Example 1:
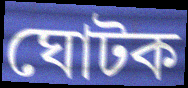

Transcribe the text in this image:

ঘোটক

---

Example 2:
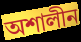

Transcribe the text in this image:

অশালীন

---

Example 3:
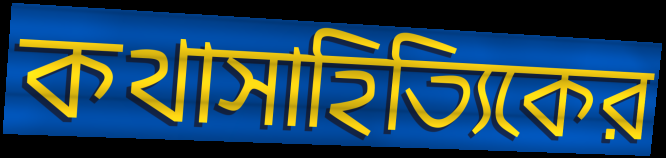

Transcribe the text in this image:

কথাসাহিত্যিকের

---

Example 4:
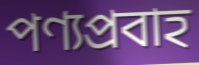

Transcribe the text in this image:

পণ্যপ্রবাহ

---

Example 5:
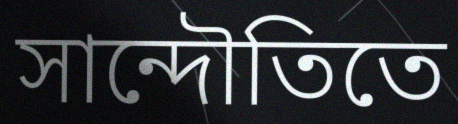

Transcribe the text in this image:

সান্দৌতিতে